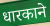
धारकाने